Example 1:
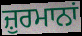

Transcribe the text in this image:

ਜ਼ੁਰਮਾਨਾਂ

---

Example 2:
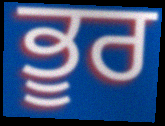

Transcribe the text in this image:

ਭੂਰ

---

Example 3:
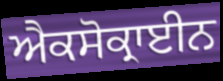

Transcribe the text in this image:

ਐਕਸੋਕ੍ਰਾਈਨ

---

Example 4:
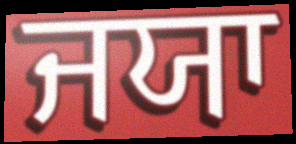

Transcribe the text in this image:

ਜਯਾ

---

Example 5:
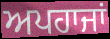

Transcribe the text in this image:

ਅਪਹਾਜਾਂ